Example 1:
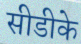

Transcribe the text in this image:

सीडीके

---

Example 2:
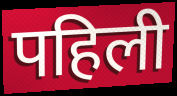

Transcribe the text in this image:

पहिली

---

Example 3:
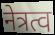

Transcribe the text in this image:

नेत्रत्व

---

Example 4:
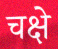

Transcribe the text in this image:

चक्षे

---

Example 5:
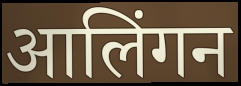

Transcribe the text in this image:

आलिंगन